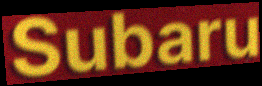
Subaru